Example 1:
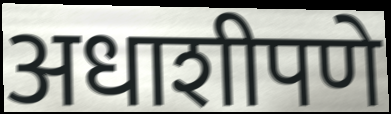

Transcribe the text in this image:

अधाशीपणे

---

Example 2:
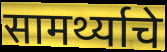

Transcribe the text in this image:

सामर्थ्याचे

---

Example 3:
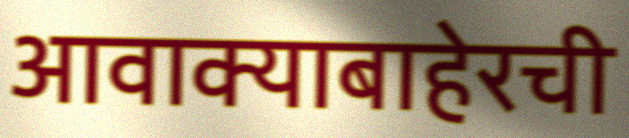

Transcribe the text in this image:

आवाक्याबाहेरची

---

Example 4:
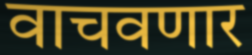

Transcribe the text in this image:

वाचवणार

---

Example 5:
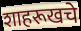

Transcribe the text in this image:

शाहरूखचे